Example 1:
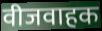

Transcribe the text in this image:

वीजवाहक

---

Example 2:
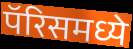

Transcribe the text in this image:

पॅरिसमध्ये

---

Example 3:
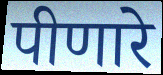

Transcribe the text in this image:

पीणारे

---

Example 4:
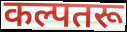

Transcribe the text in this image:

कल्पतरू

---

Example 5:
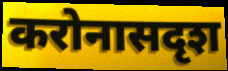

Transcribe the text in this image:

करोनासदृश